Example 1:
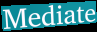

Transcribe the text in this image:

Mediate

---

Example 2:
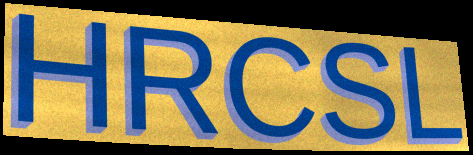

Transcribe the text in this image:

HRCSL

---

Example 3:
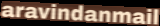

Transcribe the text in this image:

aravindanmail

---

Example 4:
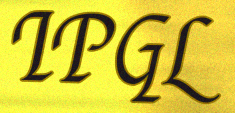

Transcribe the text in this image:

IPGL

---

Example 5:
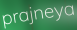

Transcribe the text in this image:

prajneya